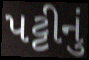
પટ્ટીનું